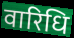
वारिधि